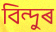
বিন্দুৰ